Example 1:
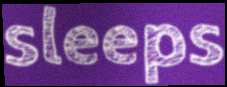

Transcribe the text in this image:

sleeps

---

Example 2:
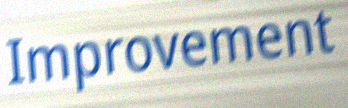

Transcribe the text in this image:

Improvement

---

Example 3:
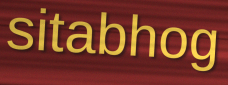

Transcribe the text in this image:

sitabhog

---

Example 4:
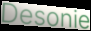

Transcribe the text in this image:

Desonie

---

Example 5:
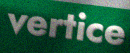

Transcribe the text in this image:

vertice